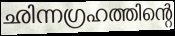
ഛിന്നഗ്രഹത്തിന്റെ